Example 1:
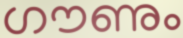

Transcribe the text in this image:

ഗൗണും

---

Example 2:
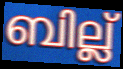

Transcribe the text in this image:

ബില്ല്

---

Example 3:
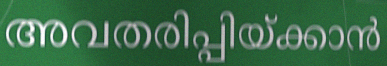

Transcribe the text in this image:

അവതരിപ്പിയ്ക്കാൻ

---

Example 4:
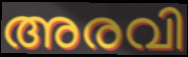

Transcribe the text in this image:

അരവി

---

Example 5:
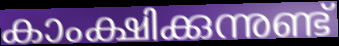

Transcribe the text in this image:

കാംക്ഷിക്കുന്നുണ്ട്